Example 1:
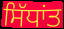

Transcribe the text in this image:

ਸਿੱਧਾਂਤ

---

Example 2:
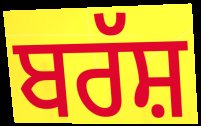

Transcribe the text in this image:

ਬਰੱਸ਼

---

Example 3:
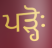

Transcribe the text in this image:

ਪੜ੍ਹੋਃ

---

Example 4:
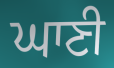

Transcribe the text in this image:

ਘਾਣੀ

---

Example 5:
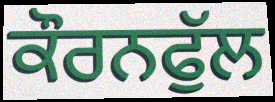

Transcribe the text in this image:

ਕੌਰਨਫੁੱਲ